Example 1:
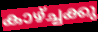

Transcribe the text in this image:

കാഴ്ച്ചക്കു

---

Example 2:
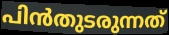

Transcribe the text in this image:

പിൻതുടരുന്നത്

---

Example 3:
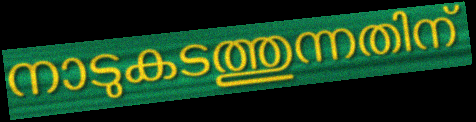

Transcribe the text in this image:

നാടുകടത്തുന്നതിന്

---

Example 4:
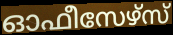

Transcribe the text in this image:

ഓഫീസേഴ്സ്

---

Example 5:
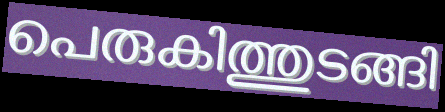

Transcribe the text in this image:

പെരുകിത്തുടങ്ങി